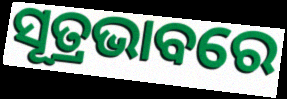
ସୂତ୍ରଭାବରେ